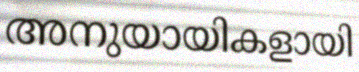
അനുയായികളായി